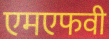
एमएफवी